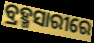
ବ୍ରହ୍ମସାରୀରେ